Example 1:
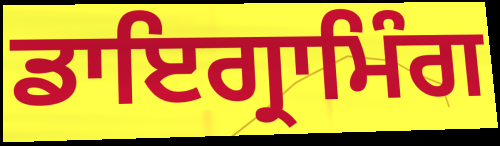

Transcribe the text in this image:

ਡਾਇਗ੍ਰਾਮਿੰਗ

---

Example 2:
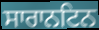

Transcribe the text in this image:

ਸਾਰਾਨਟਿਨ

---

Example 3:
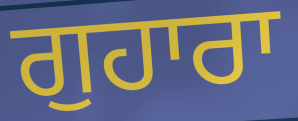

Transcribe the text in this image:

ਗੁਹਾਰਾ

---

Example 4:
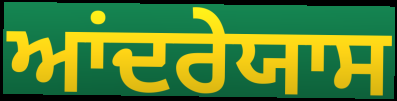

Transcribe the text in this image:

ਆਂਦਰੇਯਾਸ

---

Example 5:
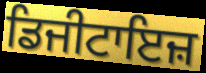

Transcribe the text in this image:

ਡਿਜੀਟਾਇਜ਼